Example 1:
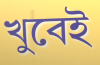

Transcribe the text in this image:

খুবেই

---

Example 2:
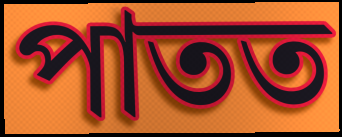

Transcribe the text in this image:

পাতত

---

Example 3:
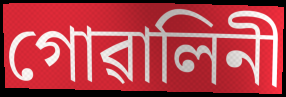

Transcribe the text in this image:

গোৱালিনী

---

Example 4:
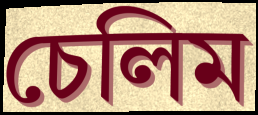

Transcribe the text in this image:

চেলিম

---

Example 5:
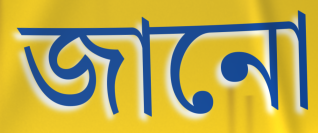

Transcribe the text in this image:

জানো